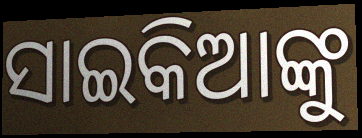
ସାଇକିଆଙ୍କୁ